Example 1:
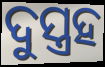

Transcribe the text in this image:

ଦୁସ୍ତ୍ରହ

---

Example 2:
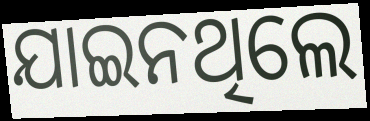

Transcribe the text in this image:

ଯାଇନଥିଲେ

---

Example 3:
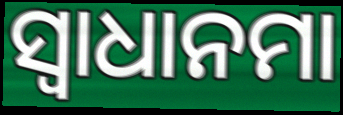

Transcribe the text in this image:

ସ୍ଵାଧାନମା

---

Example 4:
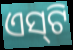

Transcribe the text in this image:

ଏସ୍‌ଟି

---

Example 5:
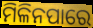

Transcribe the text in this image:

ମିଳିନପାରେ